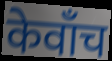
केवाँच